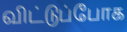
விட்டுப்போக